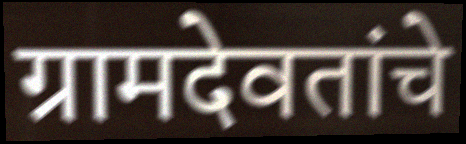
ग्रामदेवतांचे